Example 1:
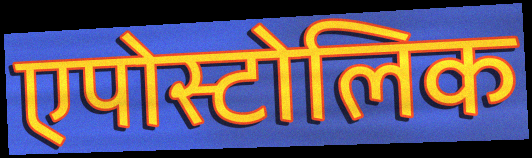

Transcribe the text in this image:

एपोस्टोलिक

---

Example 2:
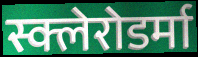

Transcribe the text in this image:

स्क्लेरोडर्मा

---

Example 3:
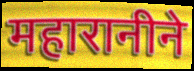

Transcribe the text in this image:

महारानीने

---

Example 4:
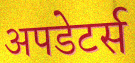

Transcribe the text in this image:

अपडेटर्स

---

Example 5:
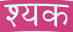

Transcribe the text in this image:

श्यक